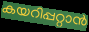
കയറിപ്പറ്റാൻ